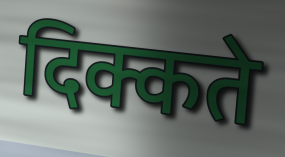
दिक्कते